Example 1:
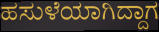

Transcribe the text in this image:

ಹಸುಳೆಯಾಗಿದ್ದಾಗ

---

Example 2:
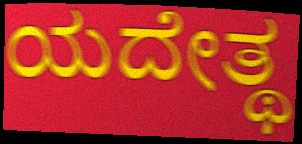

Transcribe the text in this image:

ಯದೇತ್ಥ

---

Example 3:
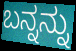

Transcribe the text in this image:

ಬನ್ನನ್ನು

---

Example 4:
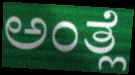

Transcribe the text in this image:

ಅಂತ್ಲೆ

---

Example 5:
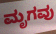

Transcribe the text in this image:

ಮೃಗವು